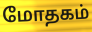
மோதகம்